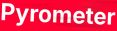
Pyrometer